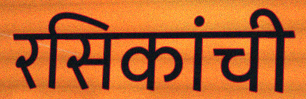
रसिकांची